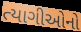
ત્યાગીઓનો